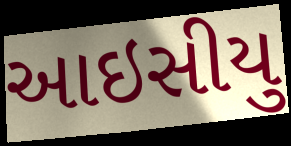
આઇસીયુ